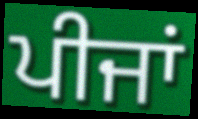
ਪੀਜਾਂ